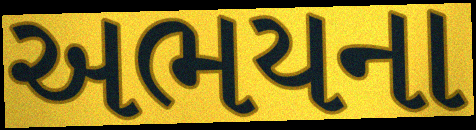
અભયના